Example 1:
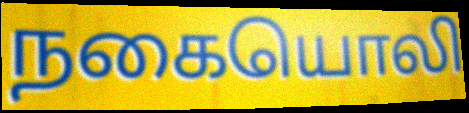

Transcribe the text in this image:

நகையொலி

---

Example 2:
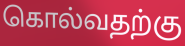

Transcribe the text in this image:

கொல்வதற்கு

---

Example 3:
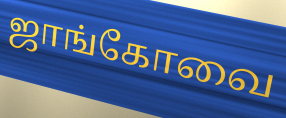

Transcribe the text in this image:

ஜாங்கோவை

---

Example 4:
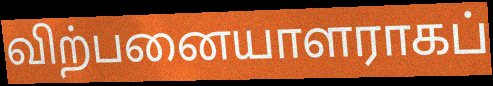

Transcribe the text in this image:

விற்பனையாளராகப்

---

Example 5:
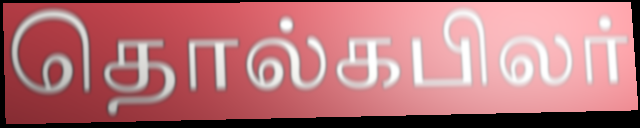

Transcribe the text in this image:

தொல்கபிலர்